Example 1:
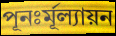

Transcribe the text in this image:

পূনঃর্মূল্যায়ন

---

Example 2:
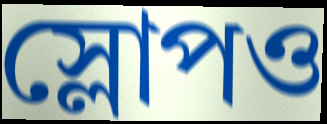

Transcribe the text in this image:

স্লোপও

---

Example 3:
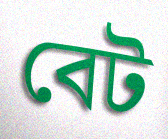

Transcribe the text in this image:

বেট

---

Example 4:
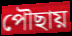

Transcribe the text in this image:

পৌছায়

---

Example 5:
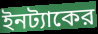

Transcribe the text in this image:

ইনট্যাকের